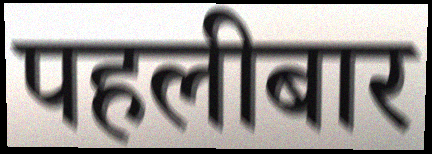
पहलीबार